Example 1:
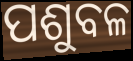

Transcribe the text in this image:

ପଶୁବଳ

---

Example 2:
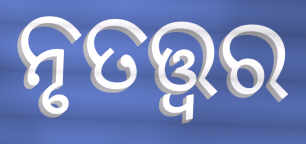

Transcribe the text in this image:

ନୃତତ୍ତ୍ୱର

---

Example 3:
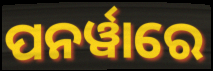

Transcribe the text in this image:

ପନର୍ୱାରେ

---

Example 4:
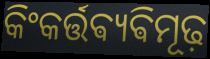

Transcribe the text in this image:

କିଂକର୍ତ୍ତଵ୍ଯଵିମୂଢ଼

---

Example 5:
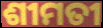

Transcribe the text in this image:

ଶୀମତୀ